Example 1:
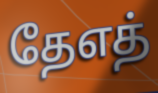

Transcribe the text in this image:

தேஎத்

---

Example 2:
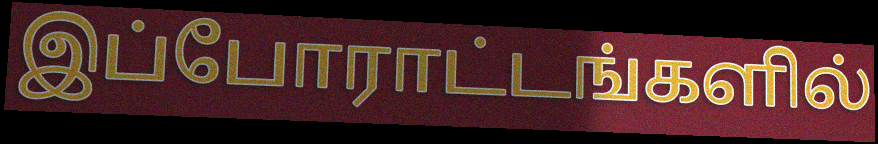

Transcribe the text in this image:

இப்போராட்டங்களில்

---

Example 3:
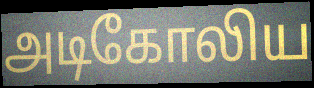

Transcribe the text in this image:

அடிகோலிய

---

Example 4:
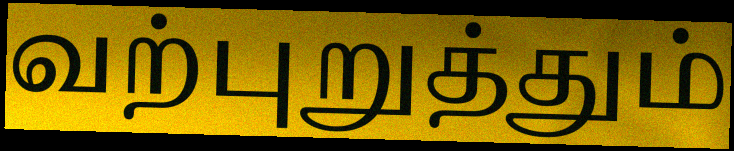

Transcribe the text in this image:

வற்புறுத்தும்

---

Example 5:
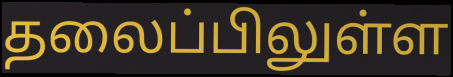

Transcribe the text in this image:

தலைப்பிலுள்ள